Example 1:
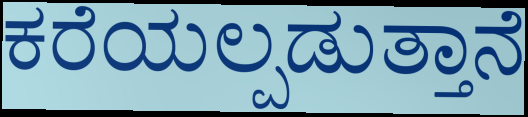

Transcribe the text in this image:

ಕರೆಯಲ್ಪಡುತ್ತಾನೆ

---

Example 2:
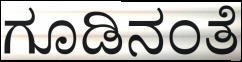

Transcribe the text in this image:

ಗೂಡಿನಂತೆ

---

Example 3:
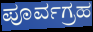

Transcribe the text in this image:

ಪೂರ್ವಗ್ರಹ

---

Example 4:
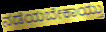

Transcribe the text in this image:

ನಡೆಯಬೇಕಾಯ್ತು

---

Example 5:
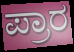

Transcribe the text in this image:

ಪ್ರಾರ